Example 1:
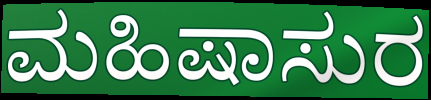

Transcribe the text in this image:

ಮಹಿಷಾಸುರ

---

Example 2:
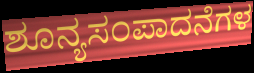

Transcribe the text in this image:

ಶೂನ್ಯಸಂಪಾದನೆಗಳ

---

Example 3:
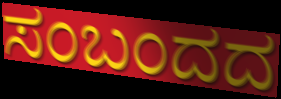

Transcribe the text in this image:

ಸಂಬಂದದ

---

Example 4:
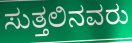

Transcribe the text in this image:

ಸುತ್ತಲಿನವರು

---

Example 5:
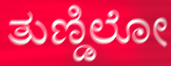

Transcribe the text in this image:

ತುಣ್ಡಿಲೋ